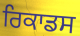
ਰਿਕਾਡਸ